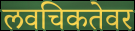
लवचिकतेवर